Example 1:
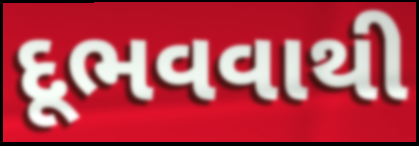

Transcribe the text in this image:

દૂભવવાથી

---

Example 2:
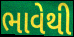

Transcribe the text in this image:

ભાવેથી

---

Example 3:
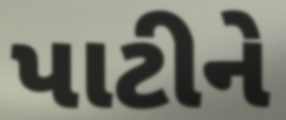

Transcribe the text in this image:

પાટીને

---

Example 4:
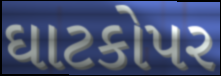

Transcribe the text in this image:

ઘાટકોપર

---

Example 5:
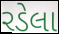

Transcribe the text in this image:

રડેલા